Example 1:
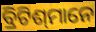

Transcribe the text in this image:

ବ୍ରିଟିଶ୍‌ମାନେ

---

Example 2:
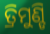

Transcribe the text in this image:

ତ୍ରିମୁଣ୍ଡି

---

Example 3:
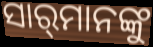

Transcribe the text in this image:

ସାର୍‌ମାନଙ୍କୁ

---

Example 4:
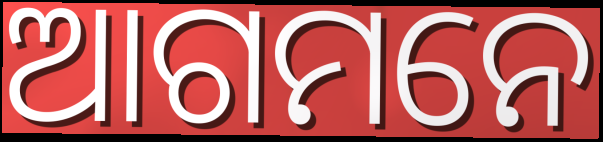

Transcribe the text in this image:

ଆଗମନେ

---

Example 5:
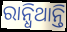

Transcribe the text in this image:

ରାନ୍ଧିଥାନ୍ତି